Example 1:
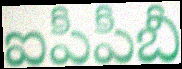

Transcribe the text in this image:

ఐపీపీబీ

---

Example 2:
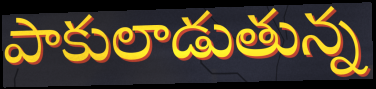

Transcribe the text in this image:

పాకులాడుతున్న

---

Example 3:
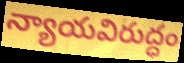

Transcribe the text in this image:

న్యాయవిరుద్ధం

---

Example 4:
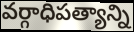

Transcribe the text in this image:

వర్గాధిపత్యాన్ని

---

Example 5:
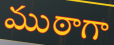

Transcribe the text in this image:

ముఠాగా